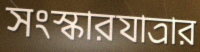
সংস্কারযাত্রার